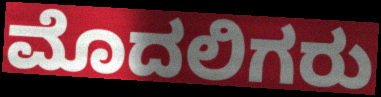
ಮೊದಲಿಗರು